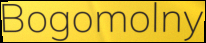
Bogomolny